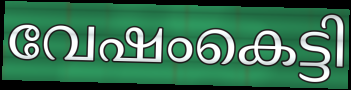
വേഷംകെട്ടി